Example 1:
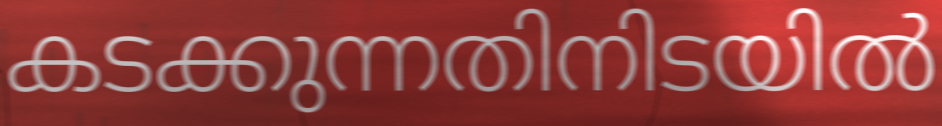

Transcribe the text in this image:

കടക്കുന്നതിനിടയിൽ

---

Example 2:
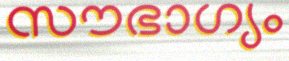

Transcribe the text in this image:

സൗഭാഗ്യം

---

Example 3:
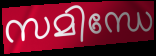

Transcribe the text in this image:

സമിന്ധേ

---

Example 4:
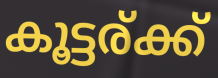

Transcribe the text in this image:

കൂട്ടര്ക്ക്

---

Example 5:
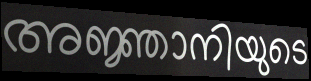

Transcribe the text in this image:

അജ്ഞാനിയുടെ